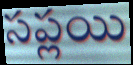
సప్లయి